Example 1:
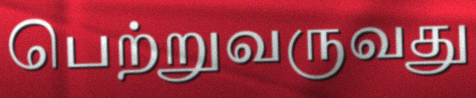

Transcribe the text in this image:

பெற்றுவருவது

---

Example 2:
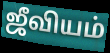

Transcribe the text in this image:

ஜீவியம்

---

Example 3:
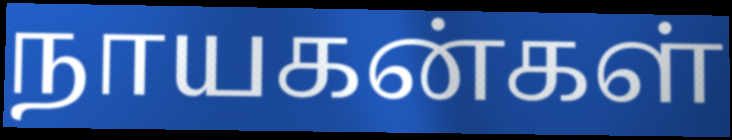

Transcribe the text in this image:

நாயகன்கள்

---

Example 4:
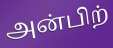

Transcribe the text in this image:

அன்பிற்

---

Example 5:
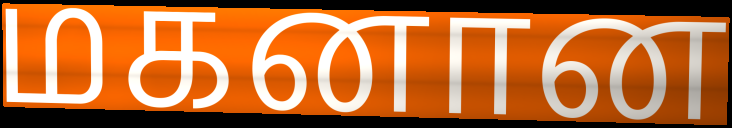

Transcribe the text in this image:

மகனான